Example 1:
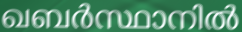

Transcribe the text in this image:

ഖബർസ്ഥാനിൽ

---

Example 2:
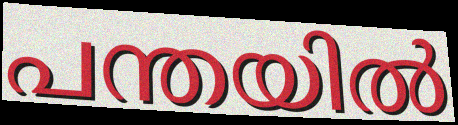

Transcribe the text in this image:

പന്തയിൽ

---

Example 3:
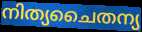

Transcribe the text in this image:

നിത്യചൈതന്യ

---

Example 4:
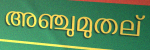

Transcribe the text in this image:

അഞ്ചുമുതല്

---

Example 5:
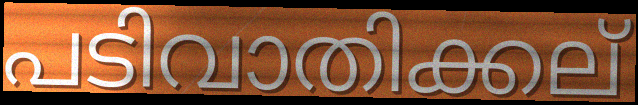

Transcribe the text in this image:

പടിവാതിക്കല്